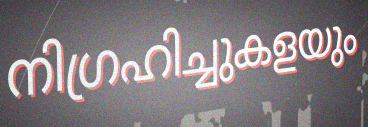
നിഗ്രഹിച്ചുകളയും